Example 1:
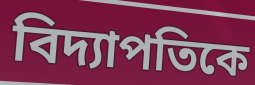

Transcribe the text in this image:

বিদ্যাপতিকে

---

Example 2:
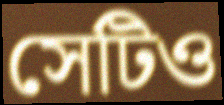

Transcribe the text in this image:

সেটিও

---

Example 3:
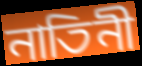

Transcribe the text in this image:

নাতিনী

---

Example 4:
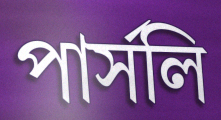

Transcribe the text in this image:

পার্সলি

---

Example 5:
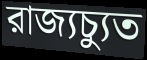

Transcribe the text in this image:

রাজ্যচ্যুত